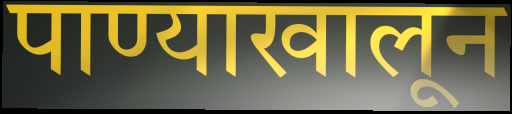
पाण्याखालून